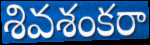
శివశంకరా